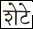
शेटे